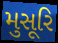
મુસૂરિ